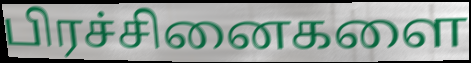
பிரச்சினைகளை